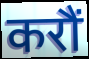
करौं